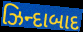
ઝિન્દાબાદ